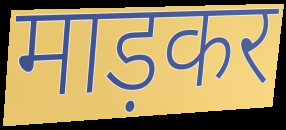
माड़कर